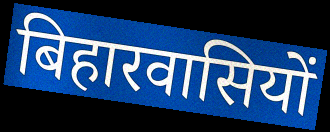
बिहारवासियों